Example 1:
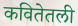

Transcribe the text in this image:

कवितेतली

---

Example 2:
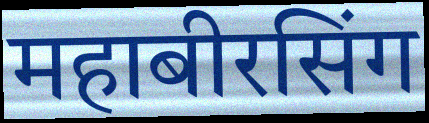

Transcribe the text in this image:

महाबीरसिंग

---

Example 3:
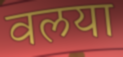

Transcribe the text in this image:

वलया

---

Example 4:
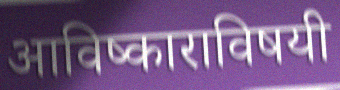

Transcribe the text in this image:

आविष्काराविषयी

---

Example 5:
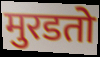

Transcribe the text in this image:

मुरडतो